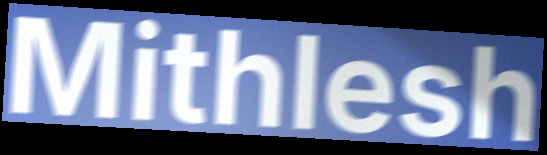
Mithlesh